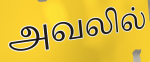
அவலில்